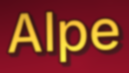
Alpe